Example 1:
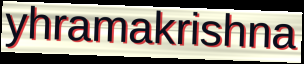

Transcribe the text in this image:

yhramakrishna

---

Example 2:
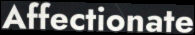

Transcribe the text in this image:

Affectionate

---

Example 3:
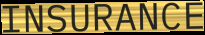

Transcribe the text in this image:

INSURANCE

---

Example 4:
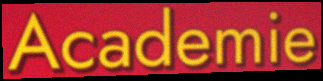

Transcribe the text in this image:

Academie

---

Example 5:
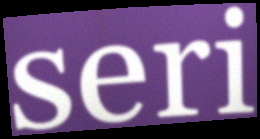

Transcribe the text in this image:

seri